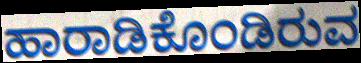
ಹಾರಾಡಿಕೊಂಡಿರುವ